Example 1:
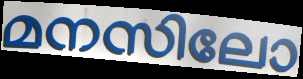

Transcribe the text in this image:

മനസിലോ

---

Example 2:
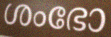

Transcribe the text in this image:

ശംഭോ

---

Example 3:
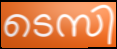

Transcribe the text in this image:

ടെസി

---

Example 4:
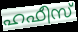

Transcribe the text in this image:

ഹഫീസ്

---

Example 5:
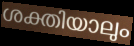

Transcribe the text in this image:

ശക്തിയാലും